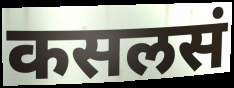
कसलसं